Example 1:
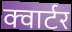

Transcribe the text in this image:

क्‍वार्टर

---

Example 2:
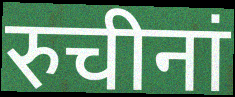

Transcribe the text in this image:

रुचीनां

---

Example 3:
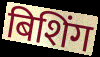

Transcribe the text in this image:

बिशिंग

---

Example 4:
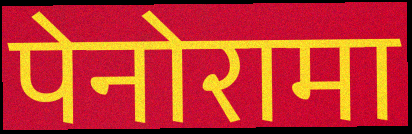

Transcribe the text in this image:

पेनोरामा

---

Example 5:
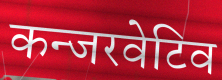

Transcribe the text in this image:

कन्जरवेटिव